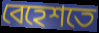
বেহেশতে